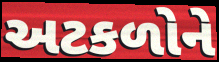
અટકળોને